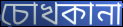
চোখকানা